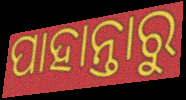
ପାହାନ୍ତାରୁ